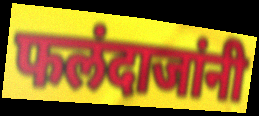
फलंदाजांनी